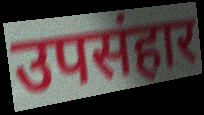
उपसंहार